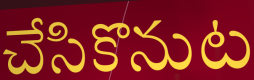
చేసికొనుట